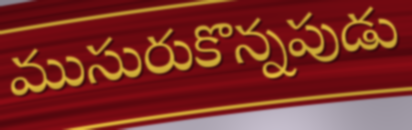
ముసురుకొన్నపుడు